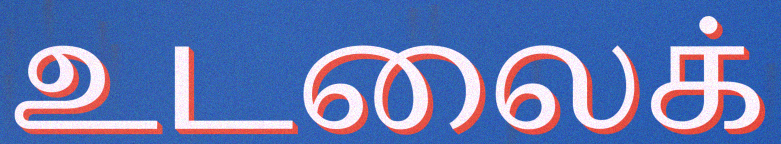
உடலைக்